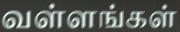
வள்ளங்கள்